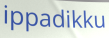
ippadikku